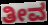
ತೀವ